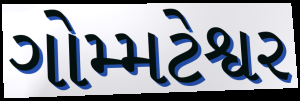
ગોમ્મટેશ્વર